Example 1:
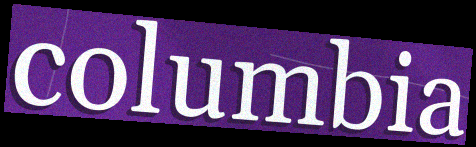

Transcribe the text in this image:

columbia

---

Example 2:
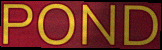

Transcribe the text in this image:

POND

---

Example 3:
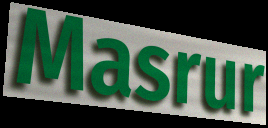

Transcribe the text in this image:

Masrur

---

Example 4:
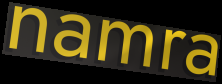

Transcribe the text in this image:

namra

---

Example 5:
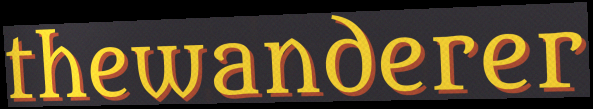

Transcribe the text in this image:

thewanderer